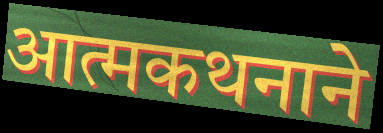
आत्मकथनाने